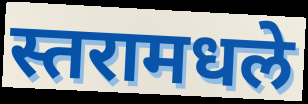
स्तरामधले